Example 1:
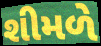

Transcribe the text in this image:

શીમળે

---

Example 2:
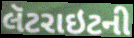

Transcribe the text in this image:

લૅટરાઇટની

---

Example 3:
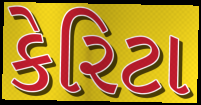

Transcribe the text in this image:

કેરિટા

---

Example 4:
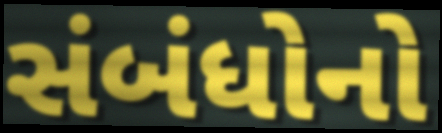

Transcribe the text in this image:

સંબંધોનો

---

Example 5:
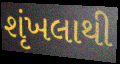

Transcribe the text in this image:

શૃંખલાથી